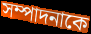
সম্পাদনাকে